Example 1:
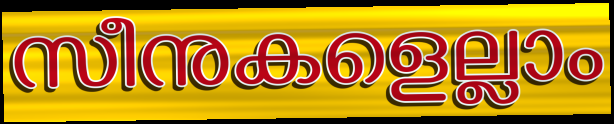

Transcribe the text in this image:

സീനുകളെല്ലാം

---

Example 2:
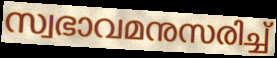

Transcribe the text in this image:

സ്വഭാവമനുസരിച്ച്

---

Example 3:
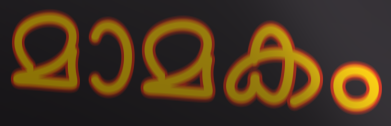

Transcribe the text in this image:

മാമകം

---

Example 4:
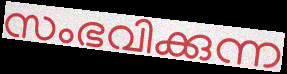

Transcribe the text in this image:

സംഭവിക്കുന്ന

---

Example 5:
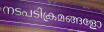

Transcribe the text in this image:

നടപടിക്രമങ്ങളോ